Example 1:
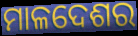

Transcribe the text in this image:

ମାଳଦେଶର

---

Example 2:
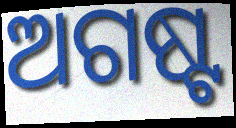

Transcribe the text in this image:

ଅଗଷ୍ଟ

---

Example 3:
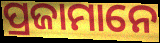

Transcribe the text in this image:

ପ୍ରଜାମାନେ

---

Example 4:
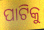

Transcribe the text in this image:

ପାଟିକୁ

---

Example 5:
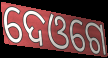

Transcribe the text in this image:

ଦେଓଗେ